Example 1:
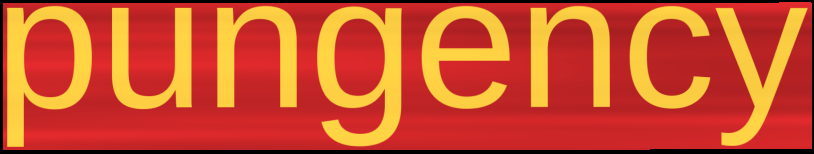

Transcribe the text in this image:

pungency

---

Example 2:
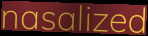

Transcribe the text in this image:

nasalized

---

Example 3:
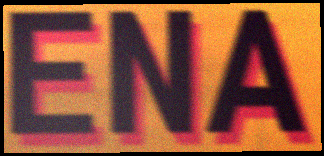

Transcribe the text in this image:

ENA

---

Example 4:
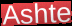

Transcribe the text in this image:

Ashte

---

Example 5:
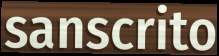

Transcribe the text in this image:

sanscrito